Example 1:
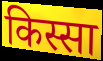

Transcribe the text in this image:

किस्सा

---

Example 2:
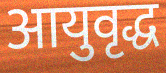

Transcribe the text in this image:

आयुवृद्ध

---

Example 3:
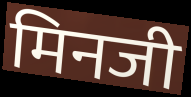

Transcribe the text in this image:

मिनजी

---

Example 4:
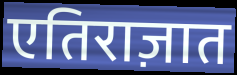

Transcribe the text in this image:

एतिराज़ात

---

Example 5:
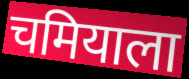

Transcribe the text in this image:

चमियाला